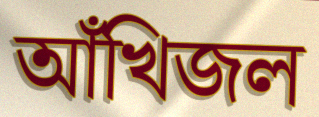
আঁখিজল